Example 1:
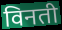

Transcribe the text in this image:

विनती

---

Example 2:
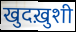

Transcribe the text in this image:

खुदख़ुशी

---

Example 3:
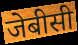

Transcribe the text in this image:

जेबीसी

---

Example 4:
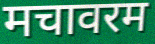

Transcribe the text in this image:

मचावरम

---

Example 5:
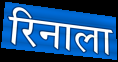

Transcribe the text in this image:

रिनाला